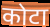
कोटा